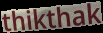
thikthak